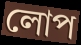
লোপ